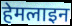
हेमलाइन